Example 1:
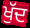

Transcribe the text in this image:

ਖੁੱਦ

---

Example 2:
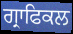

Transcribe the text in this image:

ਗ੍ਰਾਫਿਕਲ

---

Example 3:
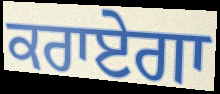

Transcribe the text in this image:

ਕਰਾਏਗਾ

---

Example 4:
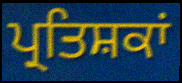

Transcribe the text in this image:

ਪ੍ਰਤਿਸ਼ਕਾਂ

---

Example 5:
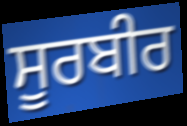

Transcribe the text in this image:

ਸੂਰਬੀਰ